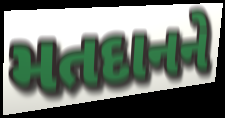
મતદાનને